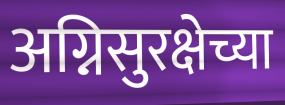
अग्निसुरक्षेच्या